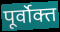
पूर्वोक्त